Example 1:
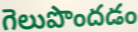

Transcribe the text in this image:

గెలుపొందడం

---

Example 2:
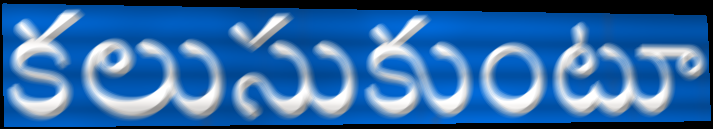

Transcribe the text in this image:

కలుసుకుంటూ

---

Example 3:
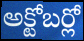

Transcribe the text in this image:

అక్టోబర్లో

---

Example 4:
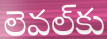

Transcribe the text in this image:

లెవల్‌కు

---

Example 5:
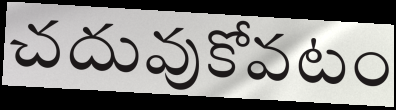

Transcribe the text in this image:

చదువుకోవటం